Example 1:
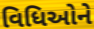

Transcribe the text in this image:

વિધિઓને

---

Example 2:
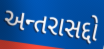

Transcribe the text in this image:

અન્તરાસદ્દો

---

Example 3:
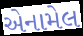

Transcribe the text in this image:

એનામેલ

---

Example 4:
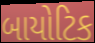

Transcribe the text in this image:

બાયોટિક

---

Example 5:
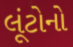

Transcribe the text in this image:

લૂંટોનો